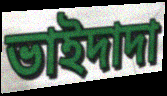
ভাইদাদা